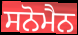
ਸਨੋਮੈਨ